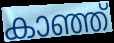
കാഞ്ഞ്